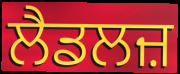
ਲੈਡਲਜ਼